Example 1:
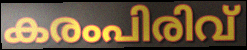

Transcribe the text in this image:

കരംപിരിവ്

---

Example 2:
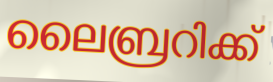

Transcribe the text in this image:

ലൈബ്രറിക്ക്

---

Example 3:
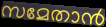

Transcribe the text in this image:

സമേതാൻ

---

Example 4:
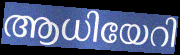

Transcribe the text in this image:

ആധിയേറി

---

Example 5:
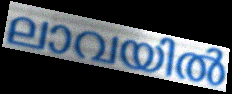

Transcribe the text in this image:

ലാവയിൽ